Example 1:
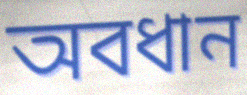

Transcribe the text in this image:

অবধান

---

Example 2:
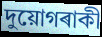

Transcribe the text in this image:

দুয়োগৰাকী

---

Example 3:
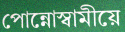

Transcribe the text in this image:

পোন্নোস্বামীয়ে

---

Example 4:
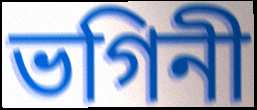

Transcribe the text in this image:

ভগিনী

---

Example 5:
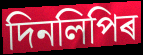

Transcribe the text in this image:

দিনলিপিৰ